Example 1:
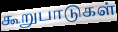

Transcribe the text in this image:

கூறுபாடுகள்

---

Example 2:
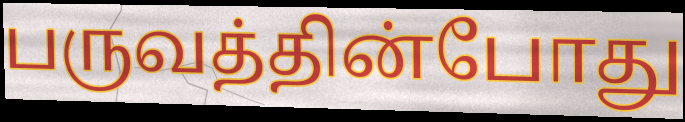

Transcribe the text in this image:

பருவத்தின்போது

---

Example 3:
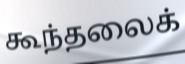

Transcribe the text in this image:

கூந்தலைக்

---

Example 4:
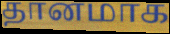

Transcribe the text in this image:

தானமாக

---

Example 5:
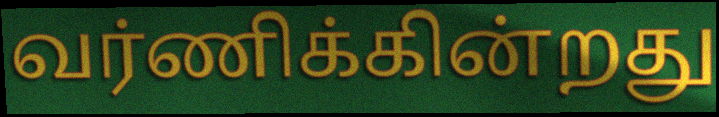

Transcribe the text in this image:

வர்ணிக்கின்றது